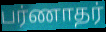
பர்ணாதர்